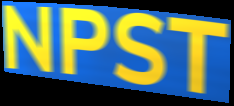
NPST